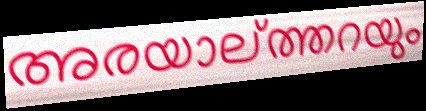
അരയാല്ത്തറയും